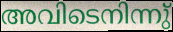
അവിടെനിന്നു്